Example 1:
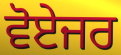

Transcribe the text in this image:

ਵੋਏਜਰ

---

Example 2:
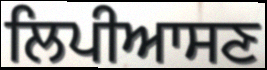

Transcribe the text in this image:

ਲਿਪੀਆਸਣ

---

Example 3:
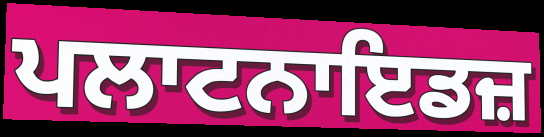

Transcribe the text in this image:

ਪਲਾਟਨਾਇਡਜ਼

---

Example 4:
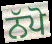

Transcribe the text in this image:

ਨੱਪੋ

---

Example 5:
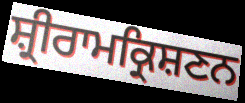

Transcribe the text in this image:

ਸ਼੍ਰੀਰਾਮਕ੍ਰਿਸ਼ਣਨ